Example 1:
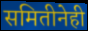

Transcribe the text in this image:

समितीनेही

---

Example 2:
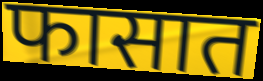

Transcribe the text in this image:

फासात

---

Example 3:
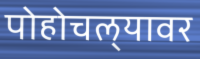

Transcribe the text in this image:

पोहोचल्यावर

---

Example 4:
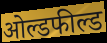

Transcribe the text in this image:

ओल्डफील्ड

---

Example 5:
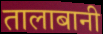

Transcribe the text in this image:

तालाबानी